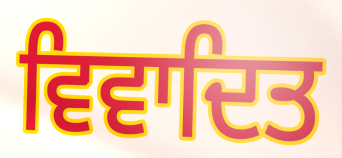
ਵਿਵਾਦਿਤ